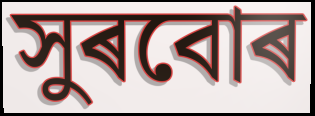
সুৰবোৰ